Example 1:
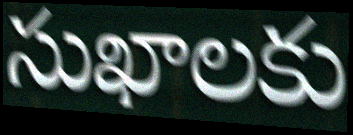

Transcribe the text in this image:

సుఖాలకు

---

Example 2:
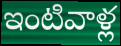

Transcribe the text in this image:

ఇంటివాళ్ల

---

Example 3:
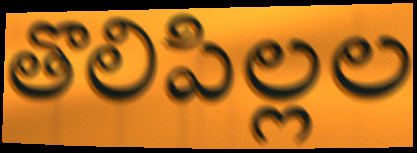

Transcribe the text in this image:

తొలిపిల్లల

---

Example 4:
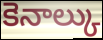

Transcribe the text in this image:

కెనాల్కు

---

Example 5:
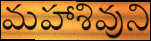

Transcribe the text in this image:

మహాశివుని